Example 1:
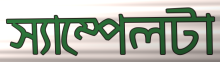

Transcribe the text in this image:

স্যাম্পেলটা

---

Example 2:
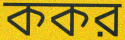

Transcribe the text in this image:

ককর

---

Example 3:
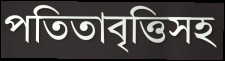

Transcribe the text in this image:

পতিতাবৃত্তিসহ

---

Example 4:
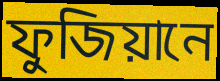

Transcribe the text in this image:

ফুজিয়ানে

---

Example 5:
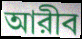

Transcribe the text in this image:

আরীব